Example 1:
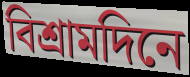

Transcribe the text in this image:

বিশ্রামদিনে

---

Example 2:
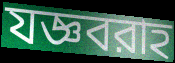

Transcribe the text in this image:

যজ্ঞবরাহ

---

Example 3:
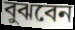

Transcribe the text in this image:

বুঝবেন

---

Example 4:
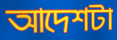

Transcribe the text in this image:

আদেশটা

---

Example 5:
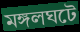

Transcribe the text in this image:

মঙ্গলঘটে